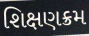
શિક્ષણક્રમ